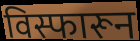
विस्फारून